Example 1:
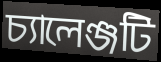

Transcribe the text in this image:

চ্যালেঞ্জটি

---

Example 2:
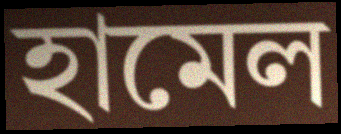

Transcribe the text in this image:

হামেল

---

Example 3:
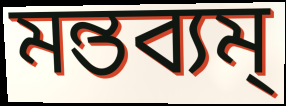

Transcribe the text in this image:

মন্তব্যম্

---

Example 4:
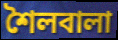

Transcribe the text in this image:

শৈলবালা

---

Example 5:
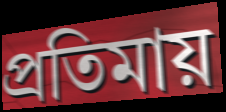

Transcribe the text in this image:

প্রতিমায়